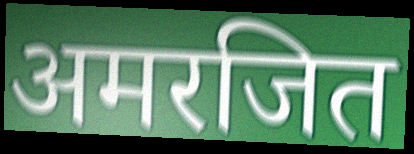
अमरजित